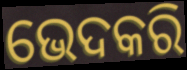
ଭେଦକରି